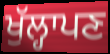
ਖੁੱਲ੍ਹਾਪਣ